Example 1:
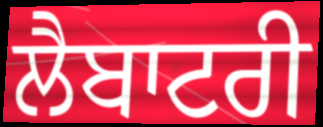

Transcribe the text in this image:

ਲੈਬਾਟਰੀ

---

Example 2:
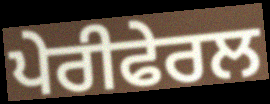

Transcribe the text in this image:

ਪੇਰੀਫੇਰਲ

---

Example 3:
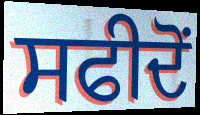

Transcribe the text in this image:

ਸਫੀਦੋਂ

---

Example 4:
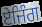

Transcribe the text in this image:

ਏਜਿੰਗ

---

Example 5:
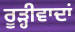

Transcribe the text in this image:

ਰੂੜ੍ਹੀਵਾਦਾਂ